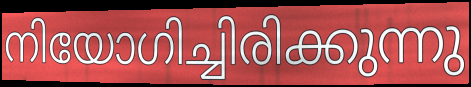
നിയോഗിച്ചിരിക്കുന്നു